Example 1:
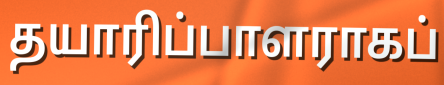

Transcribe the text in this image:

தயாரிப்பாளராகப்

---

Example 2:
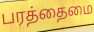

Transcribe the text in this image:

பரத்தைமை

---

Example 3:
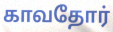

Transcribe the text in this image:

காவதோர்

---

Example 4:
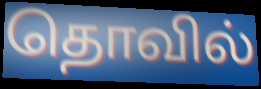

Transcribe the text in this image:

தொவில்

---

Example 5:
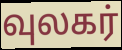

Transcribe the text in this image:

வுலகர்